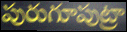
పురుగూపుట్రా